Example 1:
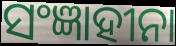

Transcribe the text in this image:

ସଂଜ୍ଞାହୀନା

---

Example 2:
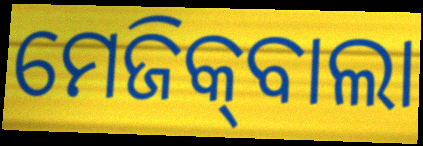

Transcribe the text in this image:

ମେଜିକ୍‍ବାଲା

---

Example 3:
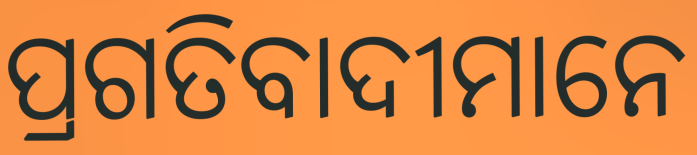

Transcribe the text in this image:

ପ୍ରଗତିବାଦୀମାନେ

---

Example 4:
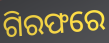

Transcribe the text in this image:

ଗିରଫରେ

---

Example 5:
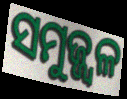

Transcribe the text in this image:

ସମୁଜ୍ଜ୍ୱଳ